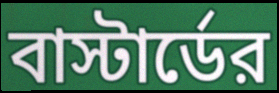
বাস্টার্ডের